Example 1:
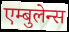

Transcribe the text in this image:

एम्बुलेन्स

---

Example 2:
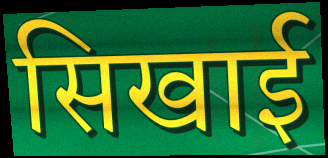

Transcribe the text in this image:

सिखाई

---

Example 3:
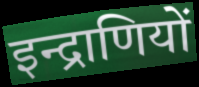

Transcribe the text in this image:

इन्द्राणियों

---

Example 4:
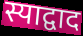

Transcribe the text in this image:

स्याद्वाद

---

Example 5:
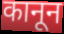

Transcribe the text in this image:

कानून